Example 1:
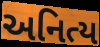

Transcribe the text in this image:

અનિત્ય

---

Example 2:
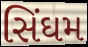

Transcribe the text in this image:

સિંઘમ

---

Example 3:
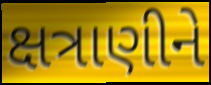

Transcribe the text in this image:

ક્ષત્રાણીને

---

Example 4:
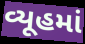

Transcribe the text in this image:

વ્યૂહમાં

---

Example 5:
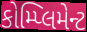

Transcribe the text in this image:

કોમ્પ્લિમેન્ટ